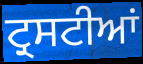
ਟ੍ਰਸਟੀਆਂ